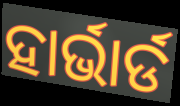
ହାର୍ଭାର୍ଡ